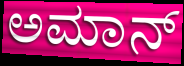
ಅಮಾನ್